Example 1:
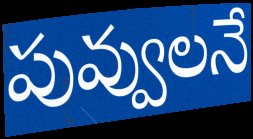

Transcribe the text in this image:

పువ్వులనే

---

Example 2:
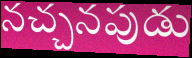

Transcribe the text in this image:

నచ్చనపుడు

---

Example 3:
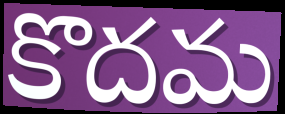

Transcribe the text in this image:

కొదమ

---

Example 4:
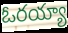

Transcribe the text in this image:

ఓరయ్యా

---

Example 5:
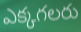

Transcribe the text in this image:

ఎక్కగలరు